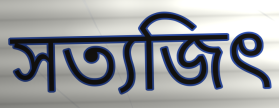
সত্যজিৎ